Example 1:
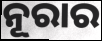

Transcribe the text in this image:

ନୂରାର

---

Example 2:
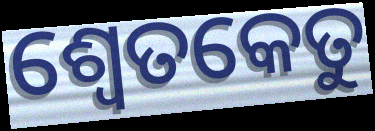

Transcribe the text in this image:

ଶ୍ୱେତକେତୁ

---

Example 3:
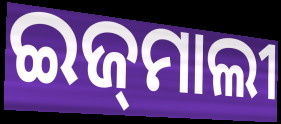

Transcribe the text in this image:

ଇଜ୍‌ମାଲୀ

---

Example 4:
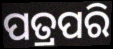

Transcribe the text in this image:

ପତ୍ରପରି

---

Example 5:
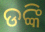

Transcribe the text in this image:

ଡଙ୍କି